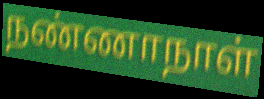
நண்ணாநாள்